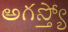
అగస్త్యో